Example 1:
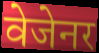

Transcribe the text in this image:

वेजेनर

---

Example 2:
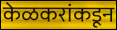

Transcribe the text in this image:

केळकरांकडून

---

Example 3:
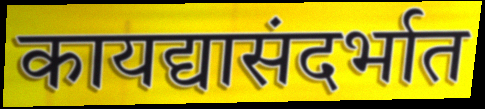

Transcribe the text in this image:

कायद्यासंदर्भात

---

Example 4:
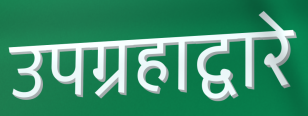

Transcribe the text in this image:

उपग्रहाद्वारे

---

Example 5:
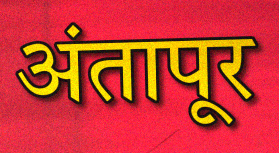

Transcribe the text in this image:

अंतापूर